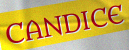
CANDICE